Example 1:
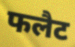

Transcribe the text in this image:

फलैट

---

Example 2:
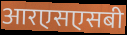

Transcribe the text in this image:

आरएसएसबी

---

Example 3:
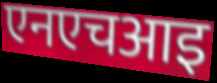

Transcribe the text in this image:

एनएचआइ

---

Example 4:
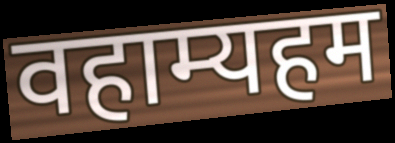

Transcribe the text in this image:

वहाम्यहम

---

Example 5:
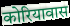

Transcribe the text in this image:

कोरियावास